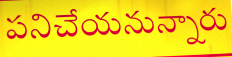
పనిచేయనున్నారు